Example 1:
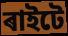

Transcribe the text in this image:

ৰাইটে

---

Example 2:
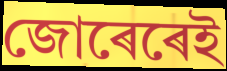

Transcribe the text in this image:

জোৰেৰেই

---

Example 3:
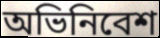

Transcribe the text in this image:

অভিনিবেশ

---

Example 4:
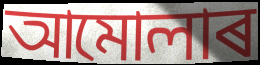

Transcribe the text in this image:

আমোলাৰ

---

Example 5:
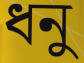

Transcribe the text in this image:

ধনু